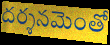
దర్శనమెంతో